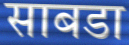
साबडा